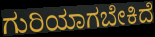
ಗುರಿಯಾಗಬೇಕಿದೆ